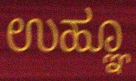
ಉಹ್ಞೂ